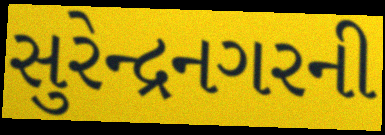
સુરેન્દ્રનગરની